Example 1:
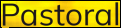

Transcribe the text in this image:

Pastoral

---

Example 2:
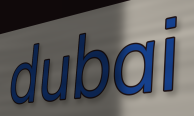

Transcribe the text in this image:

dubai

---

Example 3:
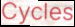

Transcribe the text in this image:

Cycles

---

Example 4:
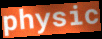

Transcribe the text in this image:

physic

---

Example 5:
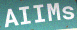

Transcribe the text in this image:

AIIMs